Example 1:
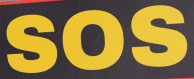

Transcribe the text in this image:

SOS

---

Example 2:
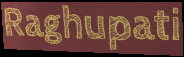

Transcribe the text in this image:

Raghupati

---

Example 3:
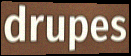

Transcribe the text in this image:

drupes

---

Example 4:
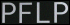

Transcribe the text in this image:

PFLP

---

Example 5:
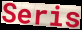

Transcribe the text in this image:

Seris